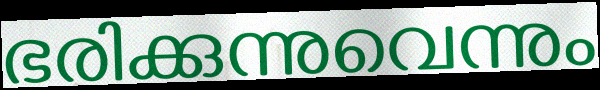
ഭരിക്കുന്നുവെന്നും